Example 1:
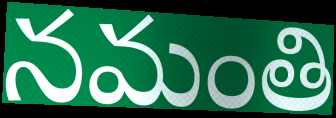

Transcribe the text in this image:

నమంతి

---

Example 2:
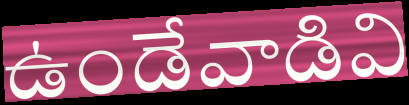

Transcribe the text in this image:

ఉండేవాడివి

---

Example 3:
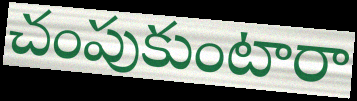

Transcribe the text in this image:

చంపుకుంటారా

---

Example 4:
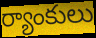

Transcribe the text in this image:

ర్యాంకులు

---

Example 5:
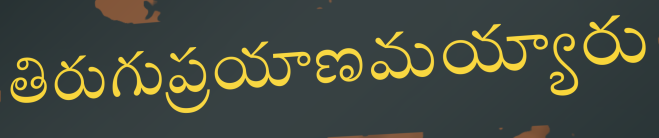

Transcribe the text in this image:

తిరుగుప్రయాణమయ్యారు